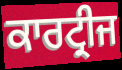
ਕਾਰਟ੍ਰੀਜ